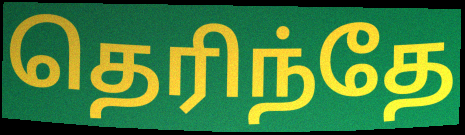
தெரிந்தே